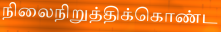
நிலைநிறுத்திக்கொண்ட